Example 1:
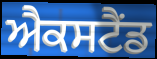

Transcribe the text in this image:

ਐਕਸਟੈਂਡ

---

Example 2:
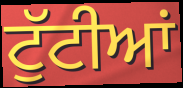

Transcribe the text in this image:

ਟੁੱਟੀਆਂ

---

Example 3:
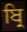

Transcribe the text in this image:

ਬ੍ਰਿ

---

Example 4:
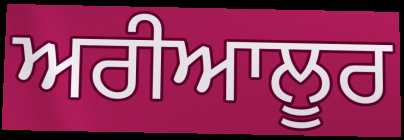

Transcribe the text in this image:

ਅਰੀਆਲੂਰ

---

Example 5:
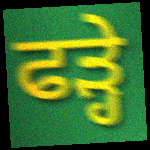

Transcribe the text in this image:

ਫੜ੍ਹੇ